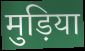
मुड़िया